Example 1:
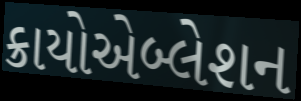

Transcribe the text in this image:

ક્રાયોએબ્લેશન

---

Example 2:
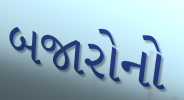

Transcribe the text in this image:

બજારોનો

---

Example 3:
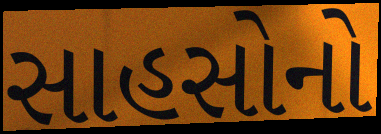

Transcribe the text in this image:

સાહસોનો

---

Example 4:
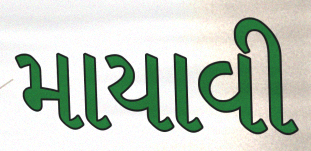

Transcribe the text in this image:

માયાવી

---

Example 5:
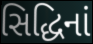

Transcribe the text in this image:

સિદ્ધિનાં